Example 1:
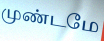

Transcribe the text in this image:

முண்டமே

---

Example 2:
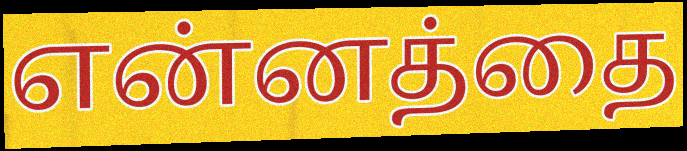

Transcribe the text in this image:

என்னத்தை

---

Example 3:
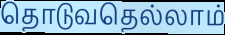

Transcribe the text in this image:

தொடுவதெல்லாம்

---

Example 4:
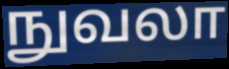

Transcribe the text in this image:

நுவலா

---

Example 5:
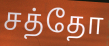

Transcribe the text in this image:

சத்தோ